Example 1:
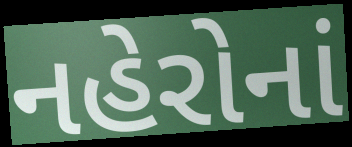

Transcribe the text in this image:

નહેરોનાં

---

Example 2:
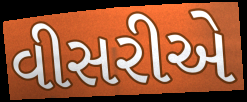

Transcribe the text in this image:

વીસરીએ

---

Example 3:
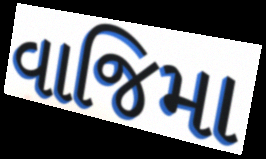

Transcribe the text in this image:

વાજિમા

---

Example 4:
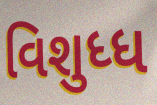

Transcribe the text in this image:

વિશુધ્ધ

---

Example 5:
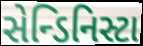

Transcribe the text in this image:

સેન્ડિનિસ્ટા